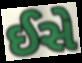
ઈસે